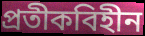
প্রতীকবিহীন